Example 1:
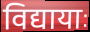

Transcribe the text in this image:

विद्यायाः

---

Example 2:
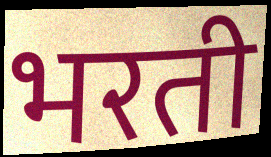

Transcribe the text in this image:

भरती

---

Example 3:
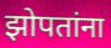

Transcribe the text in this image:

झोपतांना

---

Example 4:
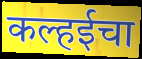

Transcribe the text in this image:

कल्हईचा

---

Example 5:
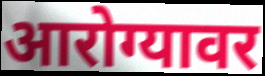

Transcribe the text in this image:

आरोग्यावर